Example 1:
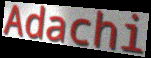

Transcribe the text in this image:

Adachi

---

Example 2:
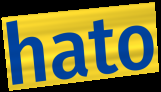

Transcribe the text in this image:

hato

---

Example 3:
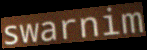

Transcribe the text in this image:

swarnim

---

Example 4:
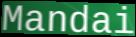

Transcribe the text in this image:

Mandai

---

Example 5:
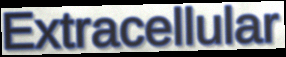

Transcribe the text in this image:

Extracellular